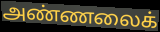
அண்ணலைக்